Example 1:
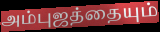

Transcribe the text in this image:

அம்புஜத்தையும்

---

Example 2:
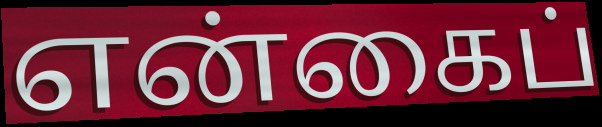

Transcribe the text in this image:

என்கைப்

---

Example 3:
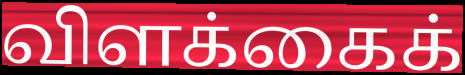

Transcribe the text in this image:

விளக்கைக்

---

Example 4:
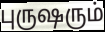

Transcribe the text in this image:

புருஷரும்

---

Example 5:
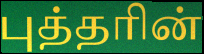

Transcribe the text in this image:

புத்தரின்